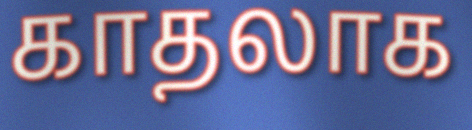
காதலாக